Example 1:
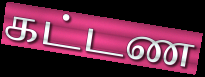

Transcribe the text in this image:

கட்டண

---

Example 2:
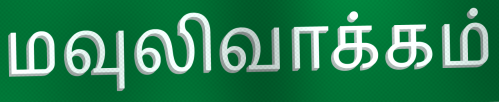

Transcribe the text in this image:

மவுலிவாக்கம்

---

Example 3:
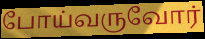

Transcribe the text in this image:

போய்வருவோர்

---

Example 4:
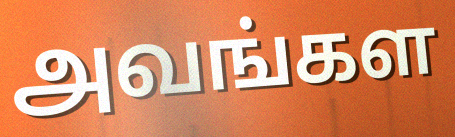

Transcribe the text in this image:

அவங்கள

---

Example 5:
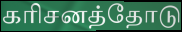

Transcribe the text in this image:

கரிசனத்தோடு